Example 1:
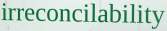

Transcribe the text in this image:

irreconcilability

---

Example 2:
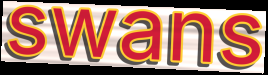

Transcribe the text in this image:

swans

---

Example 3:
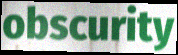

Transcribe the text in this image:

obscurity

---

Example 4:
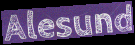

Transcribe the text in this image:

Alesund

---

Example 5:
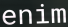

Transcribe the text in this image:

enim